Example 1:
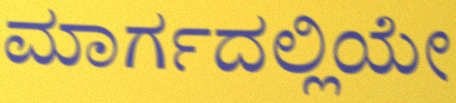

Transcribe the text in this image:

ಮಾರ್ಗದಲ್ಲಿಯೇ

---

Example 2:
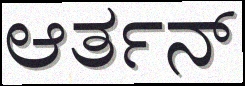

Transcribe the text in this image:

ಆರ್ತನ್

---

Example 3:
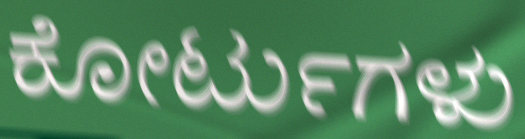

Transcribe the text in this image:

ಕೋರ್ಟುಗಳು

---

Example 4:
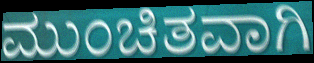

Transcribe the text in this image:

ಮುಂಚಿತವಾಗಿ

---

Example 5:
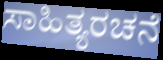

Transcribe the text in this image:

ಸಾಹಿತ್ಯರಚನೆ